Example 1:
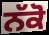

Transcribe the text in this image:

ਨੱਕੋ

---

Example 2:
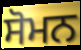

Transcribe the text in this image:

ਸੋਮਨ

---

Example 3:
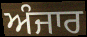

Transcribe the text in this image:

ਅੰਜਾਰ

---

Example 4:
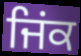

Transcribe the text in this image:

ਜਿਂਕ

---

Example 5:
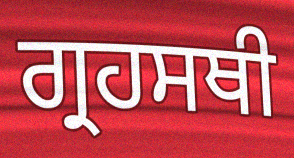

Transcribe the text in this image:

ਗ੍ਰਹਸਥੀ